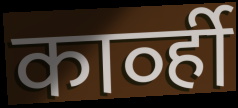
कार्व्ही